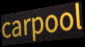
carpool